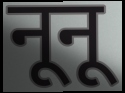
नूनू